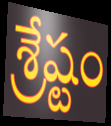
శ్రేష్టం